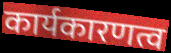
कार्यकारणत्व